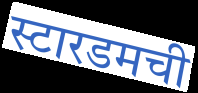
स्टारडमची